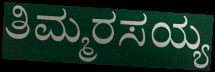
ತಿಮ್ಮರಸಯ್ಯ